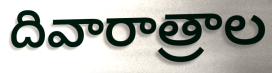
దివారాత్రాల